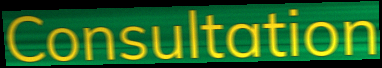
Consultation